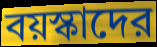
বয়স্কাদের